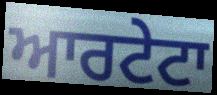
ਆਰਟੇਟਾ